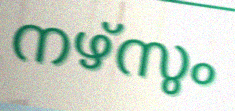
നഴ്സും